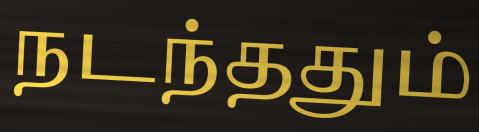
நடந்ததும்